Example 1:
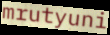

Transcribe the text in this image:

mrutyuni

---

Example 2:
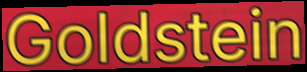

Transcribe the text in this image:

Goldstein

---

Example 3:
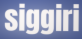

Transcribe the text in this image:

siggiri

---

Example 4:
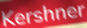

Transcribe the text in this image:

Kershner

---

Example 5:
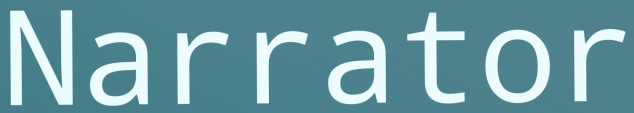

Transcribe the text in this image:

Narrator